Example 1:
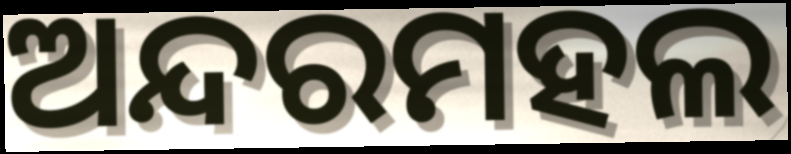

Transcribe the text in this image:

ଅନ୍ଦରମହଲ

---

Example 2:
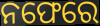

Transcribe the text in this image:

ନଫେରେ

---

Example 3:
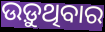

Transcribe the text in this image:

ଉଡ଼ୁଥିବାର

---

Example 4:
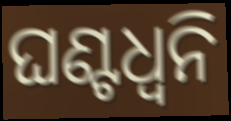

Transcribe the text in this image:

ଘଣ୍ଟଧ୍ୱନି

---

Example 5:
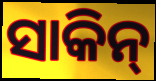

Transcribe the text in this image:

ସାକିନ୍